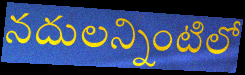
నదులన్నింటిలో